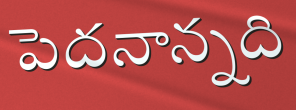
పెదనాన్నది